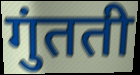
गुंतती